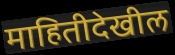
माहितीदेखील